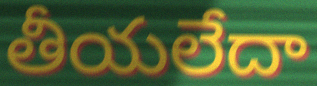
తీయలేదా